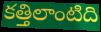
కత్తిలాంటిది